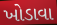
ખોડાવા